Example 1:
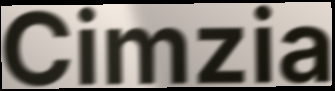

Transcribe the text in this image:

Cimzia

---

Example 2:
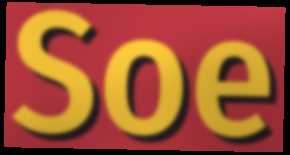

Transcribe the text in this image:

Soe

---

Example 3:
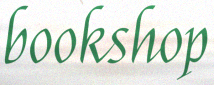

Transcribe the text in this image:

bookshop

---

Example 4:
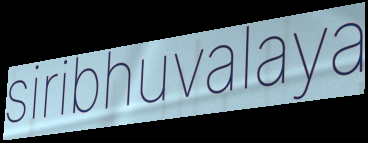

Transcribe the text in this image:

siribhuvalaya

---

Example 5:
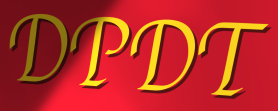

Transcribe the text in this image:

DPDT